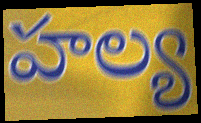
హల్య